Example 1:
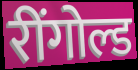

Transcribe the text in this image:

रींगोल्ड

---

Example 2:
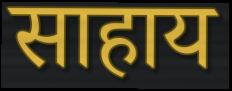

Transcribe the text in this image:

साहाय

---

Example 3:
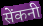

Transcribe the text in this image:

सेंकनी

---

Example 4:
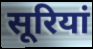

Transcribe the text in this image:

सूरियां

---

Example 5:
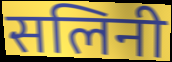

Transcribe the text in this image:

सलिनी